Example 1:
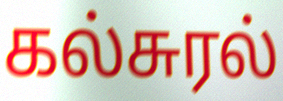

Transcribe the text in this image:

கல்சுரல்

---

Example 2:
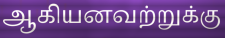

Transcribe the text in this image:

ஆகியனவற்றுக்கு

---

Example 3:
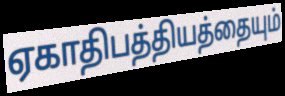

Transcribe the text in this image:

ஏகாதிபத்தியத்தையும்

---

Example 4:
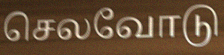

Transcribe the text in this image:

செலவோடு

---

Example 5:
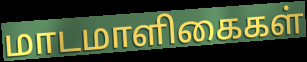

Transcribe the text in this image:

மாடமாளிகைகள்